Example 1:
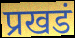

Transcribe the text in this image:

प्रखडं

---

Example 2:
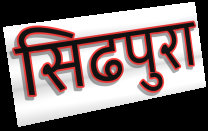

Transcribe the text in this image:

सिढपुरा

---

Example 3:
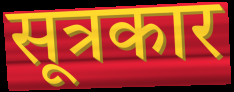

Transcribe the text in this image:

सूत्रकार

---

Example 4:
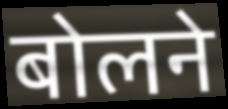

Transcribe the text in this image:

बोलने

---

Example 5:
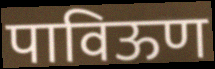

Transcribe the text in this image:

पाविऊण